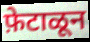
फ़ेटाळून